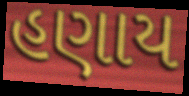
હણાય